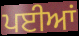
ਪਈਆਂ